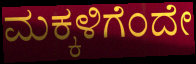
ಮಕ್ಕಳಿಗೆಂದೇ